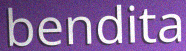
bendita